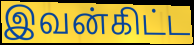
இவன்கிட்ட